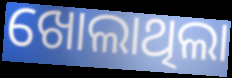
ଖୋଲାଥିଲା